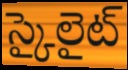
స్కైలైట్